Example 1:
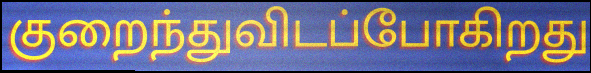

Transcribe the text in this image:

குறைந்துவிடப்போகிறது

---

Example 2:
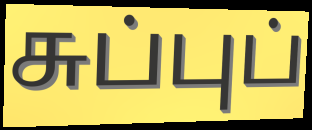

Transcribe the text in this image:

சுப்புப்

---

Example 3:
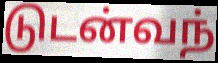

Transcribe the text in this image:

டுடன்வந்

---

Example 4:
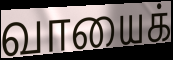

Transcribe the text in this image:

வாயைக்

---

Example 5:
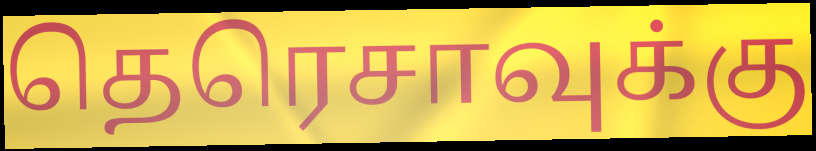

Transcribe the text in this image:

தெரெசாவுக்கு